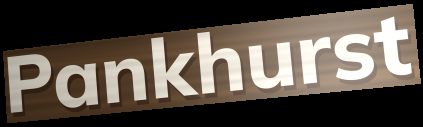
Pankhurst